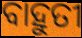
ବାହୁତୀ